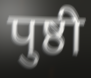
पुष्ठी